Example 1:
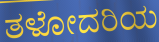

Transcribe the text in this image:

ತಳೋದರಿಯ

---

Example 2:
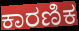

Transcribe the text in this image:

ಕಾರಣಿಕ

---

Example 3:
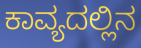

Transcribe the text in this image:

ಕಾವ್ಯದಲ್ಲಿನ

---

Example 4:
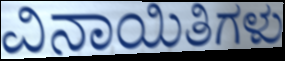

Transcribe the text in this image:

ವಿನಾಯಿತಿಗಳು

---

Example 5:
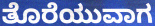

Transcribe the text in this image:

ತೊರೆಯುವಾಗ